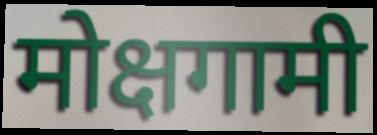
मोक्षगामी